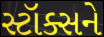
સ્ટૉક્સને